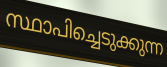
സ്ഥാപിച്ചെടുക്കുന്ന